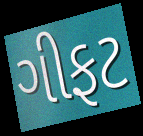
ગીફટ